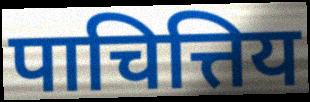
पाचित्तिय